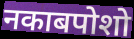
नकाबपोशो